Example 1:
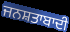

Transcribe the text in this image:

ਜਨਸ਼ਤਾਬਾਦੀ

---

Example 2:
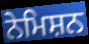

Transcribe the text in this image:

ਨੇਮਿਸ਼ਨ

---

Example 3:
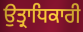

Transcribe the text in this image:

ਉਤ੍ਰਾਧਿਕਾਰੀ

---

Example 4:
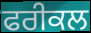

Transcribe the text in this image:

ਫਰੀਕਲ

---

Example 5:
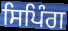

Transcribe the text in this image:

ਸਿਪਿੰਗ